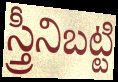
స్త్రీనిబట్టి